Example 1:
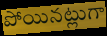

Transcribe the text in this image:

పోయినట్లుగా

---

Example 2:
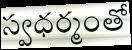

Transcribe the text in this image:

స్వధర్మంతో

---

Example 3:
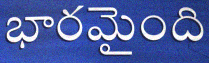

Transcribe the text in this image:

భారమైంది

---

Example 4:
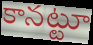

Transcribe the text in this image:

కానట్టూ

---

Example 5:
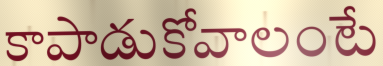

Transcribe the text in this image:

కాపాడుకోవాలంటే